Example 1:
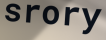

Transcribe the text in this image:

srory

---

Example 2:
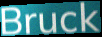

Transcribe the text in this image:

Bruck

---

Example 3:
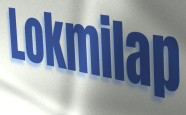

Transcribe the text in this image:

Lokmilap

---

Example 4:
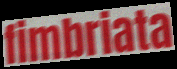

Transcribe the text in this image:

fimbriata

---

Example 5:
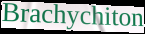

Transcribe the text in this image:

Brachychiton